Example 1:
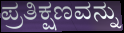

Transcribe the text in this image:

ಪ್ರತಿಕ್ಷಣವನ್ನು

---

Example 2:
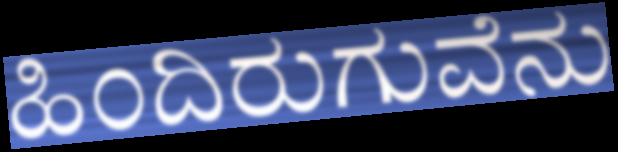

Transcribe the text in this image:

ಹಿಂದಿರುಗುವೆನು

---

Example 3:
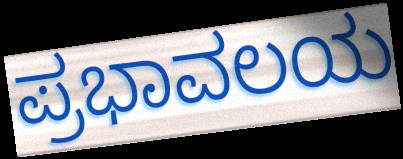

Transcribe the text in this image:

ಪ್ರಭಾವಲಯ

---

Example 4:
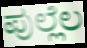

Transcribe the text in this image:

ಪುಲ್ಲೆಲ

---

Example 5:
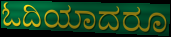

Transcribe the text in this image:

ಓದಿಯಾದರೂ